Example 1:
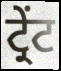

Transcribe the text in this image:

ਟ੍ਰੇਂਟ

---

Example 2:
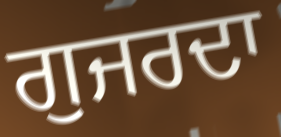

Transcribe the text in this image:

ਗੁਜਰਦਾ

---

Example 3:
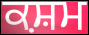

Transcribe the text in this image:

ਕ਼ਸ਼ਮ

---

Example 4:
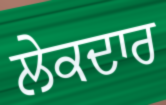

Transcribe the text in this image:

ਲੇਕਦਾਰ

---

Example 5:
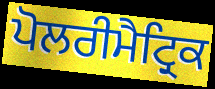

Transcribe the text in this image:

ਪੋਲਰੀਮੈਟ੍ਰਿਕ